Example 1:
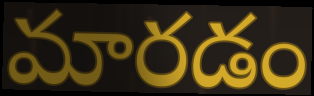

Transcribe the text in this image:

మారడం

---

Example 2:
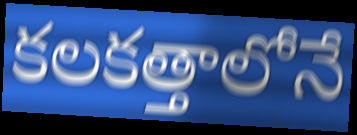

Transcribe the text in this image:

కలకత్తాలోనే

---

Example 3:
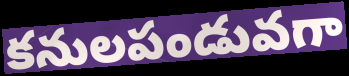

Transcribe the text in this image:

కనులపండువగా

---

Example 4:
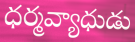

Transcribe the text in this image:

ధర్మవ్యాధుడు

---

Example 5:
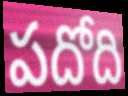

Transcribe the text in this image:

పదోది